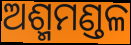
ଅଶ୍ମମଣ୍ଡଳ